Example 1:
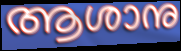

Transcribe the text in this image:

ആശാനു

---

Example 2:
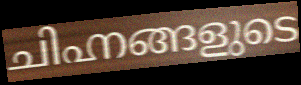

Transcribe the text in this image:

ചിഹ്നങ്ങളുടെ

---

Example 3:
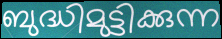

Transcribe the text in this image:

ബുദ്ധിമുട്ടിക്കുന്ന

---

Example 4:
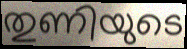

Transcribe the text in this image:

തുണിയുടെ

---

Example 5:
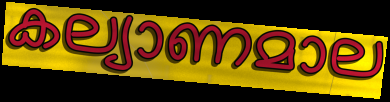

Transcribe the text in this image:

കല്യാണമാല